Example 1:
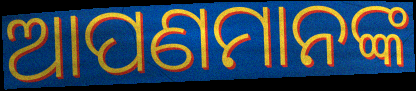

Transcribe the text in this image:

ଆପଣମାନଙ୍କ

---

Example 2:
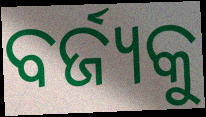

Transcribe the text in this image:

ବର୍ଜ୍ୟକୁ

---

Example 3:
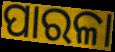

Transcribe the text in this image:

ପାରଳା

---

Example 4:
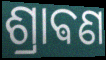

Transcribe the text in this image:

ଶ୍ରାଵଣ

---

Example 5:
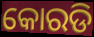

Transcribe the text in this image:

କୋରଡି